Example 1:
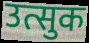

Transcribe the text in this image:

उत्सुक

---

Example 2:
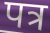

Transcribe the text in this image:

पत्र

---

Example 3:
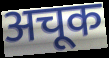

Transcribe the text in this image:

अचूक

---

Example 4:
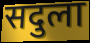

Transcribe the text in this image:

सदुला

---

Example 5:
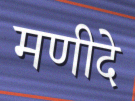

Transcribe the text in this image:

मणीदे